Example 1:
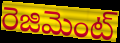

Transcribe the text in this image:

రెజిమెంట్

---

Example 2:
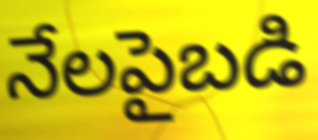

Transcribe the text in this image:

నేలపైబడి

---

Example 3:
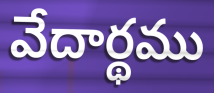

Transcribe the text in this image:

వేదార్థము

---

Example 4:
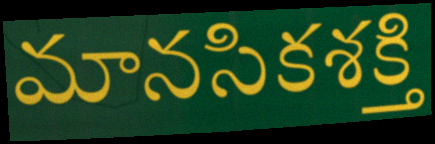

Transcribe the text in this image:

మానసికశక్తి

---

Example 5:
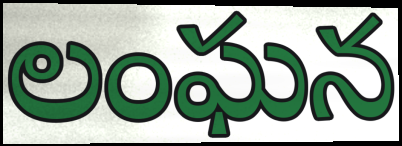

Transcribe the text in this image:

లంఘన